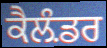
ਕੈਲ਼ੰਡਰ